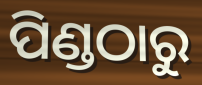
ପିଣ୍ଡଠାରୁ